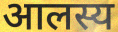
आलस्य